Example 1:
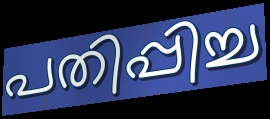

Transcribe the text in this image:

പതിപ്പിച്ച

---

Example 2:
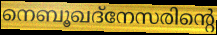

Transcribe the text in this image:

നെബൂഖദ്നേസരിന്റെ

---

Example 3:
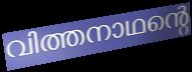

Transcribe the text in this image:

വിത്തനാഥന്റെ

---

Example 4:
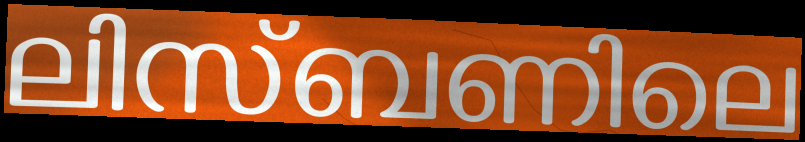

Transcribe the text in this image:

ലിസ്ബണിലെ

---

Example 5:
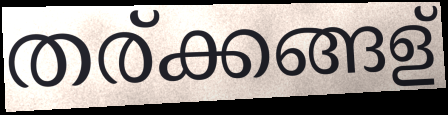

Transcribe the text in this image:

തര്ക്കങ്ങള്